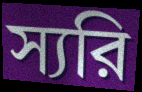
স্যরি